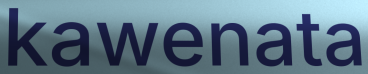
kawenata